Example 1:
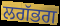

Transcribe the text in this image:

ਲਗੱਭਗ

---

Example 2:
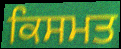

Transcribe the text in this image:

ਕਿਸਮਤ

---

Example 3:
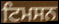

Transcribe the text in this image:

ਟਿਮਸਨ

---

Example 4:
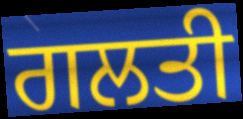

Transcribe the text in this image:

ਗਲਤੀ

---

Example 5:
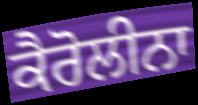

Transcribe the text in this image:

ਕੈਰੋਲੀਨਾ